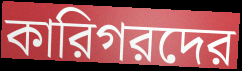
কারিগরদের